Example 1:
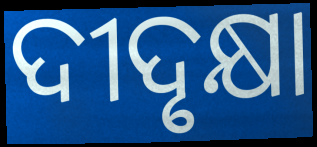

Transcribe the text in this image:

ଦୀଦୃକ୍ଷା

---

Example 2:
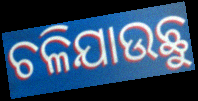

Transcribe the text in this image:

ଚଳିଯାଉଛୁ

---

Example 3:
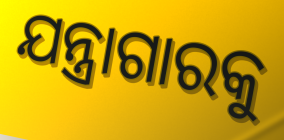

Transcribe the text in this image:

ଯନ୍ତ୍ରାଗାରକୁ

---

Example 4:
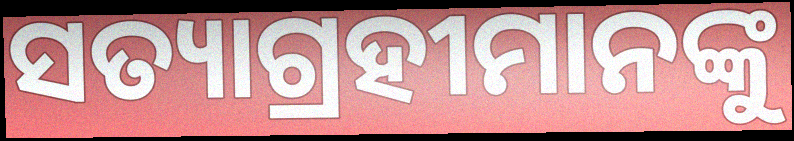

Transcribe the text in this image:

ସତ୍ୟାଗ୍ରହୀମାନଙ୍କୁ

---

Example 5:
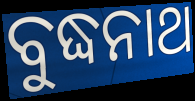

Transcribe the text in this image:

ବୁଦ୍ଧନାଥ